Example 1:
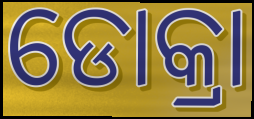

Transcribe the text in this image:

ଡୋକ୍ରା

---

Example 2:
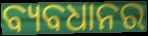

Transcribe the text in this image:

ବ୍ୟବଧାନର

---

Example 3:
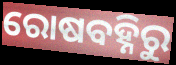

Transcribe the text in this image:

ରୋଷବହ୍ନିରୁ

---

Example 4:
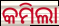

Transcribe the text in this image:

କମିଲା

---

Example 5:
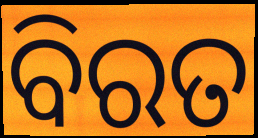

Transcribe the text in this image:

ବିରତ